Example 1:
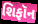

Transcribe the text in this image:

શિફૉન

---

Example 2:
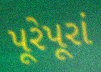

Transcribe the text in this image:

પૂરેપૂરાં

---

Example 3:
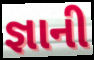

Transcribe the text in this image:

જ્ઞાની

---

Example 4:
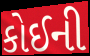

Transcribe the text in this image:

કોઈની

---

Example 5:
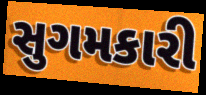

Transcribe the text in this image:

સુગમકારી